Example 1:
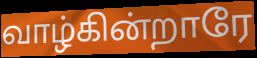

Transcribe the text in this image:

வாழ்கின்றாரே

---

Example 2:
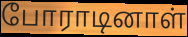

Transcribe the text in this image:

போராடினாள்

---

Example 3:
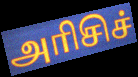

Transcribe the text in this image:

அரிசிச்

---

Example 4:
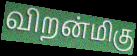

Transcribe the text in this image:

விறன்மிகு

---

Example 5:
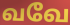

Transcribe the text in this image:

வவே